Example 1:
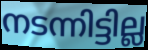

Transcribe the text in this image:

നടന്നിട്ടില്ല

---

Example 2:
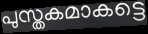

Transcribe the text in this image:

പുസ്തകമാകട്ടെ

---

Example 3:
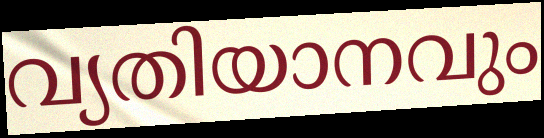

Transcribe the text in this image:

വ്യതിയാനവും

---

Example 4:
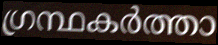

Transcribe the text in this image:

ഗ്രന്ഥകർത്താ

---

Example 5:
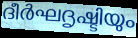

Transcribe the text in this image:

ദീർഘദൃഷ്ടിയും